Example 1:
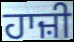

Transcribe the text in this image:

ਹਾਜ਼ੀ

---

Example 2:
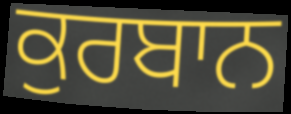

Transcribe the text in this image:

ਕੁਰਬਾਨ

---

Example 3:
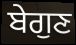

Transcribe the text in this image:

ਬੇਗੁਣ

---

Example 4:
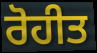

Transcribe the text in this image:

ਰੋਹੀਤ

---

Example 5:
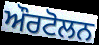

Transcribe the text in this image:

ਔਰਟੋਲਨ